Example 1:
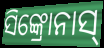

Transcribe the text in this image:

ସିଙ୍କ୍ରୋନାସ୍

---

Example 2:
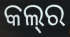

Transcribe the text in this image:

କଲ୍‌ର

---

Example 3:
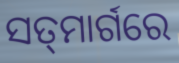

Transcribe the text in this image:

ସତ୍‌ମାର୍ଗରେ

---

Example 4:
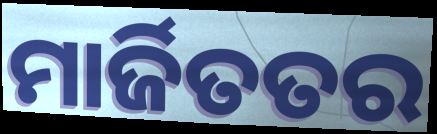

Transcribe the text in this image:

ମାର୍ଜିତତର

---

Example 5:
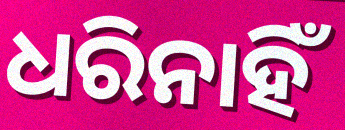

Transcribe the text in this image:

ଧରିନାହିଁ